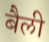
बैली